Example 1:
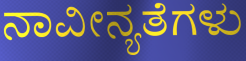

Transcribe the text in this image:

ನಾವೀನ್ಯತೆಗಳು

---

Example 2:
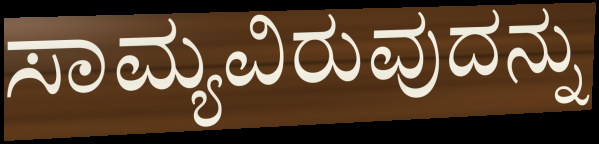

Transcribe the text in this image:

ಸಾಮ್ಯವಿರುವುದನ್ನು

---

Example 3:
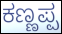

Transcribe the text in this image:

ಕಣ್ಣಪ್ಪ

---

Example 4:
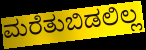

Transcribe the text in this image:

ಮರೆತುಬಿಡಲಿಲ್ಲ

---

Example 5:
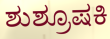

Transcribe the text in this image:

ಶುಶ್ರೂಷಕಿ